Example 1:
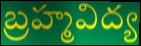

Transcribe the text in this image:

బ్రహ్మవిద్య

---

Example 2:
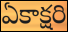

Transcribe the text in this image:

ఏకాక్షరి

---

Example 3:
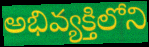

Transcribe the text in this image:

అభివ్యక్తిలోని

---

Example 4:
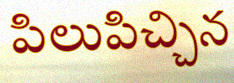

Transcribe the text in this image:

పిలుపిచ్చిన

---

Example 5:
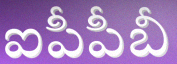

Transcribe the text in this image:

ఐపీపీబీ